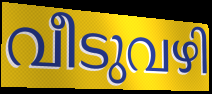
വീടുവഴി